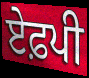
ਏਫ਼ਪੀ